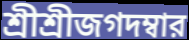
শ্রীশ্রীজগদম্বার